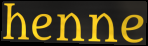
henne